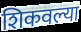
शिकवल्या